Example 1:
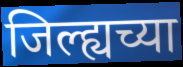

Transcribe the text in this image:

जिल्ह्यच्या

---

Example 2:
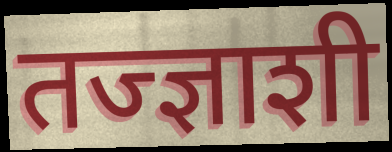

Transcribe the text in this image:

तज्ज्ञाशी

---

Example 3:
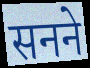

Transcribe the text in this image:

सनने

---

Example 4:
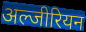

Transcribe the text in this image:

अल्जीरियन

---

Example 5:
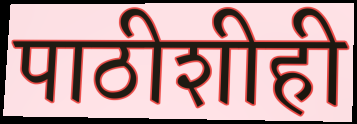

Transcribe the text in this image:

पाठीशीही